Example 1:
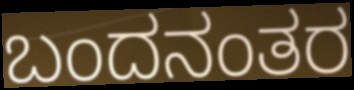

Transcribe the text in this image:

ಬಂದನಂತರ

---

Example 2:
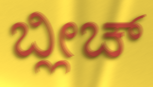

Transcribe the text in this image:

ಬ್ಲೀಚ್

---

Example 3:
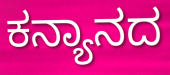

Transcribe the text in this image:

ಕನ್ಯಾನದ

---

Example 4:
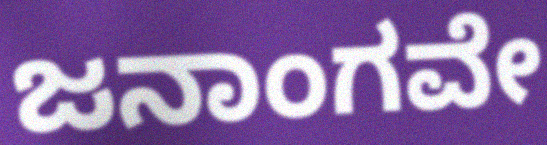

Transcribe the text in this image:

ಜನಾಂಗವೇ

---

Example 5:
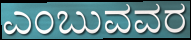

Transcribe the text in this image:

ಎಂಬುವವರ